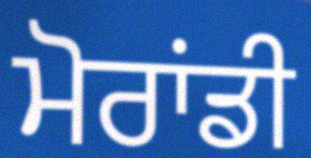
ਮੋਰਾਂਡੀ